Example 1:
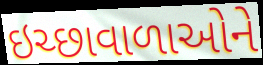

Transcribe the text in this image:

ઇચ્છાવાળાઓને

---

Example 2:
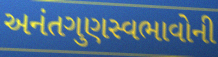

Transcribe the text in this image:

અનંતગુણસ્વભાવોની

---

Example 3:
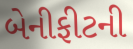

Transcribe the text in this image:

બેનીફીટની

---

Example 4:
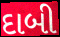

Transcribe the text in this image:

દાબી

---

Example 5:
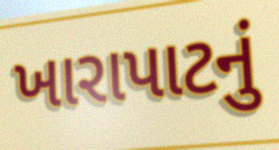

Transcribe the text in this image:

ખારાપાટનું